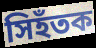
সিহঁতক